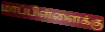
மாப்பிள்ளைக்கு